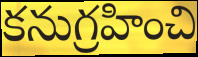
కనుగ్రహించి